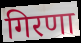
गिरणा